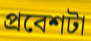
প্রবেশটা